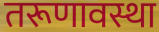
तरूणावस्था